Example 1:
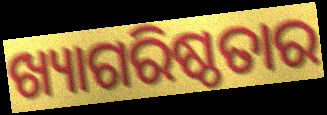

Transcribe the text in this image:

ଖ୍ୟାଗରିଷ୍ଠତାର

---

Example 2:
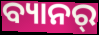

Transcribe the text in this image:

ବ୍ୟାନର୍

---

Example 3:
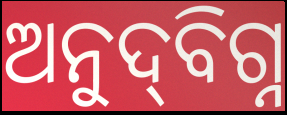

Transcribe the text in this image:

ଅନୁଦ୍‌ବିଗ୍ନ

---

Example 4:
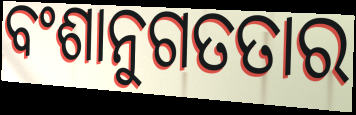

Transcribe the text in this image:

ବଂଶାନୁଗତତାର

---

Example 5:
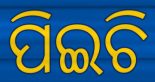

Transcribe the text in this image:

ପିଇଚି